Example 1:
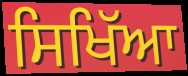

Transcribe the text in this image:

ਸਿਖਿੱਆ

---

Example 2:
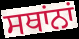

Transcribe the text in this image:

ਸਥਾਂਨਾਂ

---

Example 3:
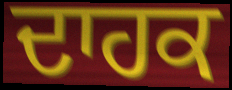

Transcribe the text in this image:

ਦਾਹਕ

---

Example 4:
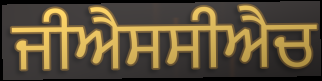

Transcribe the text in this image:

ਜੀਐਸਸੀਐਚ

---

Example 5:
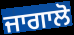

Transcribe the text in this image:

ਜਾਗਾਲੋ